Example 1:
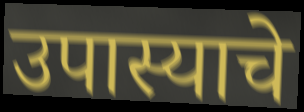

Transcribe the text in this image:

उपास्याचे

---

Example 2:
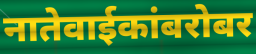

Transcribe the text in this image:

नातेवाईकांबरोबर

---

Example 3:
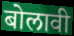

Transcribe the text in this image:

बोलावी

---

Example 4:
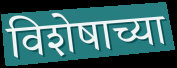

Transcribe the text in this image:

विशेषाच्या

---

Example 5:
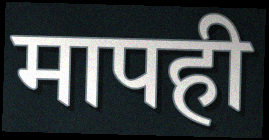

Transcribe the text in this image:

मापही